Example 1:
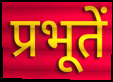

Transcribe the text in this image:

प्रभूतें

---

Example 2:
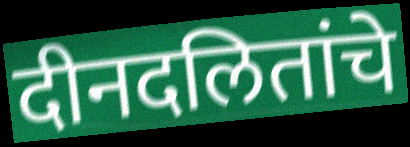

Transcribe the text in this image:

दीनदलितांचे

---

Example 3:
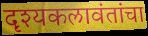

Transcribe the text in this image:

दृश्यकलावंतांचा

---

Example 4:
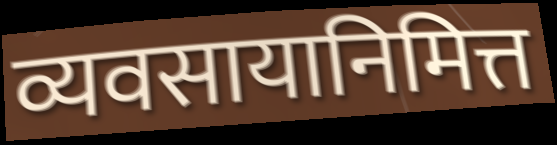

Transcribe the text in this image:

व्यवसायानिमित्त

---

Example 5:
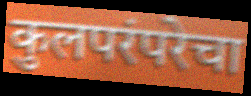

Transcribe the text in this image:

कुलपरंपरेचा